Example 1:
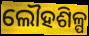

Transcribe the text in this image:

ଲୌହଶିଳ୍ପ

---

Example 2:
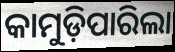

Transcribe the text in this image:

କାମୁଡ଼ିପାରିଲା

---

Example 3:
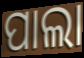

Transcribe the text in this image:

ପାଲା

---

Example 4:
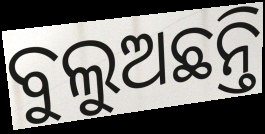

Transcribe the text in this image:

ବୁଲୁଅଛନ୍ତି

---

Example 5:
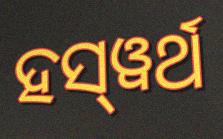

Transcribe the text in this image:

ହସ୍‌ୱର୍ଥ